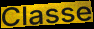
Classe